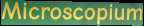
Microscopium